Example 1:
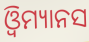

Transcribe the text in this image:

ଓ୍ବିମ୍ୟାନସ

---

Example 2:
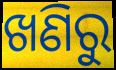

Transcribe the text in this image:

ଖଣିରୁ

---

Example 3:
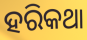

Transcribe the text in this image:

ହରିକଥା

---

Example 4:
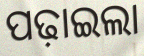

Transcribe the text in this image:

ପଢ଼ାଇଲା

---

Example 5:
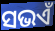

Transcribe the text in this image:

ସଭଏଁ